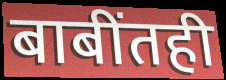
बाबींतही